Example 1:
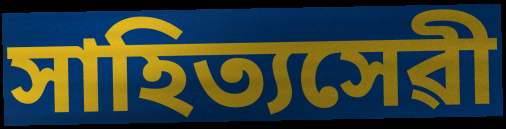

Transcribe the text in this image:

সাহিত্যসেৱী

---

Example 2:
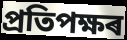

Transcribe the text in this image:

প্ৰতিপক্ষৰ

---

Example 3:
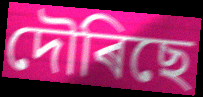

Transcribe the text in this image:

দৌৰিছে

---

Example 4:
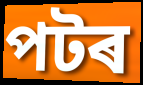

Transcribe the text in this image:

পটৰ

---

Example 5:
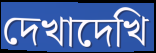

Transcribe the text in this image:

দেখাদেখি